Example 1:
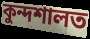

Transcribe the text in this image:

কুন্দশালত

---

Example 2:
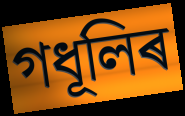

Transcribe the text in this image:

গধূলিৰ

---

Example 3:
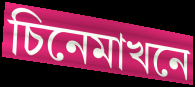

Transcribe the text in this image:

চিনেমাখনে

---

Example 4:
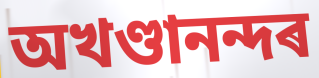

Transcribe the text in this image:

অখণ্ডানন্দৰ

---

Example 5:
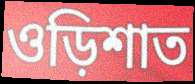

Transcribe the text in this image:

ওড়িশাত